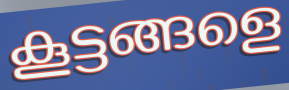
കൂട്ടങ്ങളെ